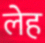
लेह